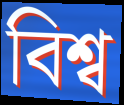
বিশ্ব